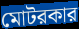
মোটরকার